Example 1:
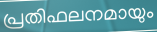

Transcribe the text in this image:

പ്രതിഫലനമായും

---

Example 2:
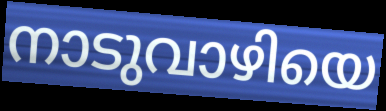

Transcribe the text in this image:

നാടുവാഴിയെ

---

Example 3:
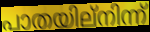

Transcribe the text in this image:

പാതയില്നിന്ന്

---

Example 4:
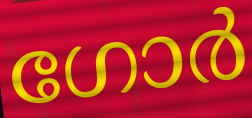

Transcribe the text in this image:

ഗോർ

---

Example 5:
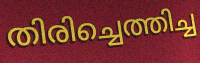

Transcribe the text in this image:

തിരിച്ചെത്തിച്ച